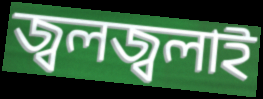
জ্বলজ্বলাই